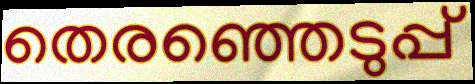
തെരഞ്ഞെടുപ്പ്